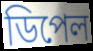
ডিপেল